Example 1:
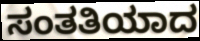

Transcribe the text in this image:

ಸಂತತಿಯಾದ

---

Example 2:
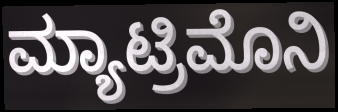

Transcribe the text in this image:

ಮ್ಯಾಟ್ರಿಮೊನಿ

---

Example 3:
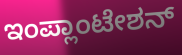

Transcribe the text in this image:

ಇಂಪ್ಲಾಂಟೇಶನ್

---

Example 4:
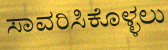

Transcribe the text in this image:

ಸಾವರಿಸಿಕೊಳ್ಳಲು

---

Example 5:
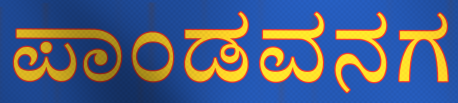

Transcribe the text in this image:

ಪಾಂಡವನಗ